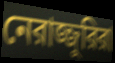
নেরাজ্জুরিরা